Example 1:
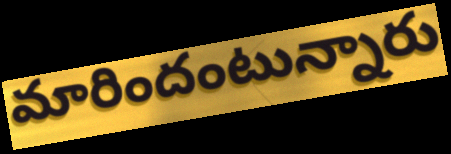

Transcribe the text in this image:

మారిందంటున్నారు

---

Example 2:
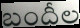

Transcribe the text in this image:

బందీల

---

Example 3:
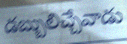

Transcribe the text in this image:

డబ్బులిచ్చేవాడు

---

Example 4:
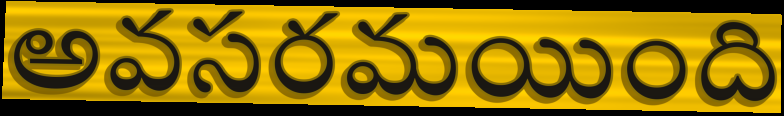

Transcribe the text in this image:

అవసరమయింది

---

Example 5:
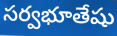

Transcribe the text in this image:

సర్వభూతేషు